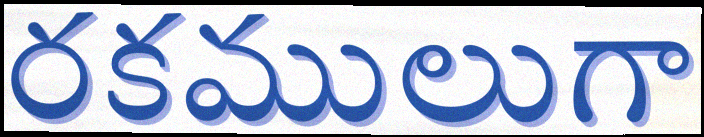
రకములుగా